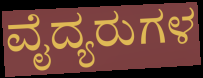
ವೈದ್ಯರುಗಳ